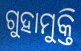
ଗୁହାମୁକ୍ତି